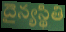
దైన్యస్థితి